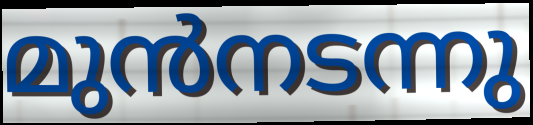
മുൻനടന്നു